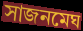
সাজনমেঘ